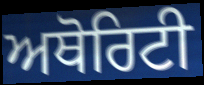
ਅਥੋਰਿਟੀ